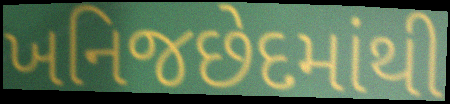
ખનિજછેદમાંથી